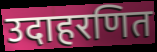
उदाहरणित